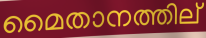
മൈതാനത്തില്